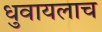
धुवायलाच